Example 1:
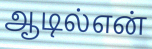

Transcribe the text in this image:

ஆடில்என்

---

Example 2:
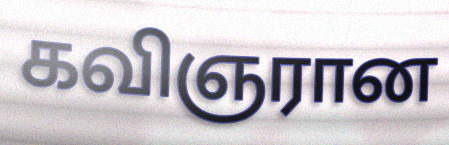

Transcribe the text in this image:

கவிஞரான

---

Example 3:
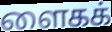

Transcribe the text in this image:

ளைகக்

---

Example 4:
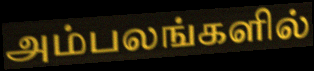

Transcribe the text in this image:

அம்பலங்களில்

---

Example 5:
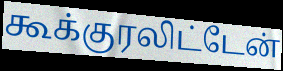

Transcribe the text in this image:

கூக்குரலிட்டேன்